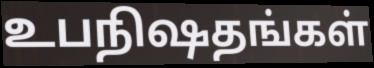
உபநிஷதங்கள்